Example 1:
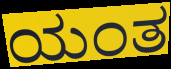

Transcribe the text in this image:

ಯಂತ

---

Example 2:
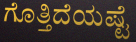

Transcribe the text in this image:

ಗೊತ್ತಿದೆಯಷ್ಟೆ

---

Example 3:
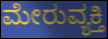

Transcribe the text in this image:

ಮೇರುವ್ಯಕ್ತಿ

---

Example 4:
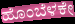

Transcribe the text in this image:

ಹೊಂಬೆಳಕೇ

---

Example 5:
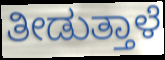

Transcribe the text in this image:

ತೀಡುತ್ತಾಳೆ